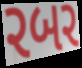
રબર